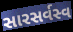
સારસર્વસ્વ